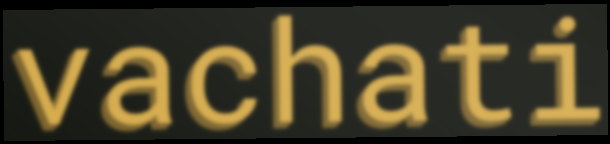
vachati